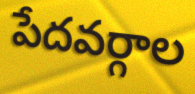
పేదవర్గాల